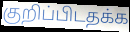
குறிப்பிடதக்க